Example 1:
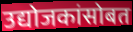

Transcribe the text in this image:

उद्योजकांसोबत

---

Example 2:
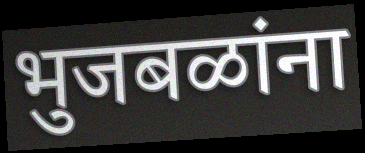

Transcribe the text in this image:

भुजबळांना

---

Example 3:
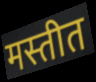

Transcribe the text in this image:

मस्तीत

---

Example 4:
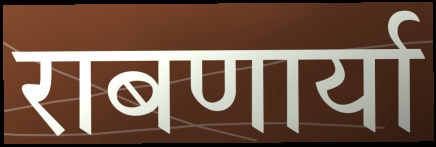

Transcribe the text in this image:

राबणार्या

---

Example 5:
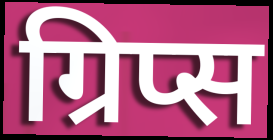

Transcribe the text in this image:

ग्रिप्स